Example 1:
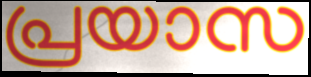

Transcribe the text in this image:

പ്രയാസ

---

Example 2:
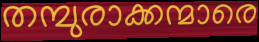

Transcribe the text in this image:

തമ്പുരാക്കന്മാരെ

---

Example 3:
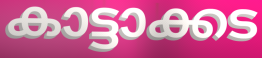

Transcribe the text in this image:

കാട്ടാക്കട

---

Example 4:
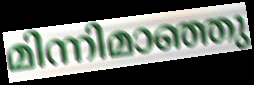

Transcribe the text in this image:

മിന്നിമാഞ്ഞു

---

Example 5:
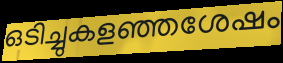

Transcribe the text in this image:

ഒടിച്ചുകളഞ്ഞശേഷം